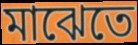
মাঝেতে